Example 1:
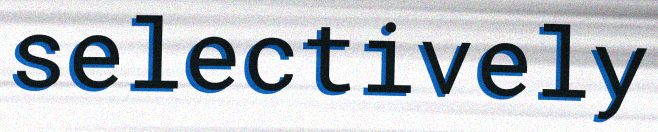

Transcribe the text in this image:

selectively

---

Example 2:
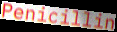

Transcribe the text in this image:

Penicillin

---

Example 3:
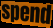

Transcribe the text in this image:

spend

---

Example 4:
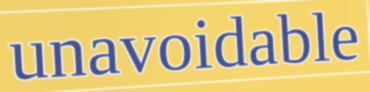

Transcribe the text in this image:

unavoidable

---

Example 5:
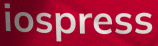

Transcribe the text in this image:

iospress